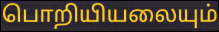
பொறியியலையும்